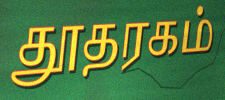
தூதரகம்